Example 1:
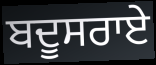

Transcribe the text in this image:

ਬਦੂਸਰਾਏ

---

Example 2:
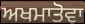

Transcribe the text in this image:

ਅਖਮਾਤੋਵਾ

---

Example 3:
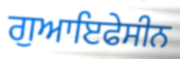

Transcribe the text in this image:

ਗੁਆਇਫੇਸੀਨ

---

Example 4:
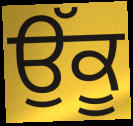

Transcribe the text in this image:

ਉੱਕੂ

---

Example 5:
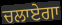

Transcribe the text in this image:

ਚਲਾਏਗਾ